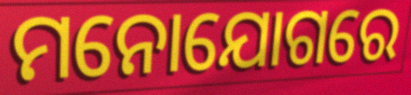
ମନୋଯୋଗରେ